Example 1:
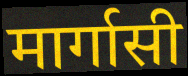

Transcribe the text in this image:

मार्गासी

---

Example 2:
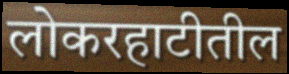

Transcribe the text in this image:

लोकरहाटीतील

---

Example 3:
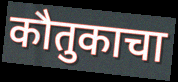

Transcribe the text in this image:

कौतुकाचा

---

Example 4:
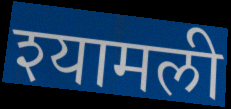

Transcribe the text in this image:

श्यामली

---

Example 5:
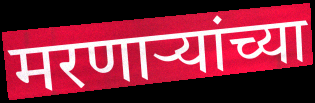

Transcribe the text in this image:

मरणाऱ्यांच्या